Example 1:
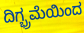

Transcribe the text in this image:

ದಿಗ್ಭ್ರಮೆಯಿಂದ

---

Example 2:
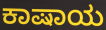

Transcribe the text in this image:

ಕಾಷಾಯ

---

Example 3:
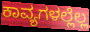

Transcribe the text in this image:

ಕಾವ್ಯಗಳಲ್ಲೆಲ್ಲ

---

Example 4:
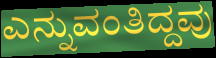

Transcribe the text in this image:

ಎನ್ನುವಂತಿದ್ದವು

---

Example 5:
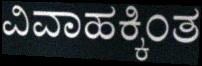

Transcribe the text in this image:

ವಿವಾಹಕ್ಕಿಂತ